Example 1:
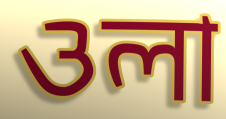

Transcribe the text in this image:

ওলা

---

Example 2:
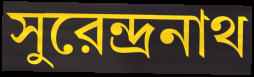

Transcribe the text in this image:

সুরেন্দ্রনাথ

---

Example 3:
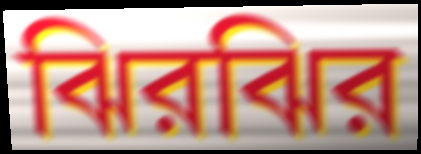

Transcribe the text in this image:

ঝিরঝির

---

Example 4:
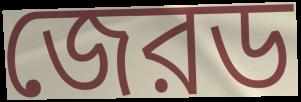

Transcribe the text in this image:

জেরড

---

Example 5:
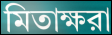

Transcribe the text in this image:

মিতাক্ষরা